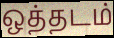
ஒத்தடம்